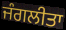
ਜੰਗਲੀਤਾ